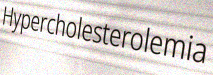
Hypercholesterolemia